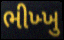
ભીખ્ખુ